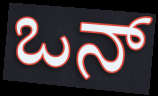
ಒನ್